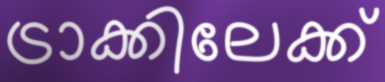
ട്രാക്കിലേക്ക്